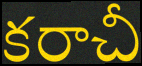
కరాచీ